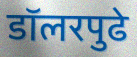
डॉलरपुढे